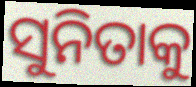
ସୁନିତାକୁ